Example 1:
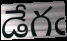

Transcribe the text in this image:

డేగఁ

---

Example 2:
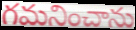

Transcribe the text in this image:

గమనించాను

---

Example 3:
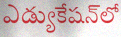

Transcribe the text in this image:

ఎడ్యుకేషన్‌లో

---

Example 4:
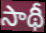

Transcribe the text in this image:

సాథీ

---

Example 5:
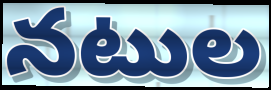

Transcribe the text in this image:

నటుల